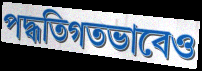
পদ্ধতিগতভাবেও